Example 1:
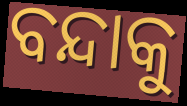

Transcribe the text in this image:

ବନ୍ଦାକୁ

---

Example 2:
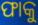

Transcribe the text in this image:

ଫାକୁ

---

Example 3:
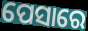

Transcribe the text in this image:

ପେସାରେ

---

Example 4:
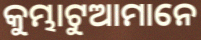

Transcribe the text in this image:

କୁମ୍ଭାଟୁଆମାନେ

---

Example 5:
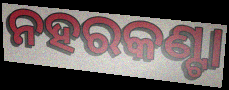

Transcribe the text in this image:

ନହରକଣ୍ଟା